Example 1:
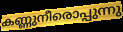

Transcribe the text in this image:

കണ്ണുനീരൊപ്പുന്നു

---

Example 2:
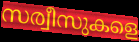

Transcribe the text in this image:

സര്വീസുകളെ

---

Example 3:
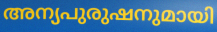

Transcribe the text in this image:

അന്യപുരുഷനുമായി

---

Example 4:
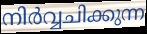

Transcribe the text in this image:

നിർവ്വചിക്കുന്ന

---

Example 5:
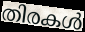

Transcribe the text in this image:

തിരകൾ